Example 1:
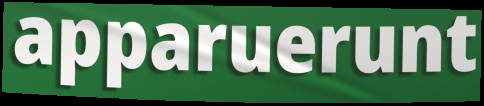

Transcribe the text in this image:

apparuerunt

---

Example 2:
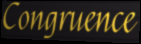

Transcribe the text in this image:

Congruence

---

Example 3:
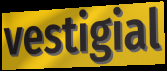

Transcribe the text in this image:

vestigial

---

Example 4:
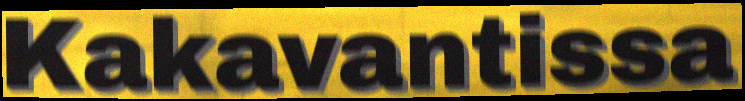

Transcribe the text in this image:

Kakavantissa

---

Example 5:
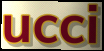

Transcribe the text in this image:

ucci